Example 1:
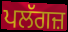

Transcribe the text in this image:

ਪਲੱਗਜ਼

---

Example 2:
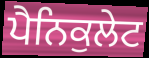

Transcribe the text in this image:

ਪੈਨਿਕੁਲੇਟ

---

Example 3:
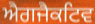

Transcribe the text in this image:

ਐਗਜੈਕਟਿਵ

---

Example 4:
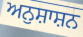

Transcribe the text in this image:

ਅਨੁਸ਼ਾਸ਼ਨ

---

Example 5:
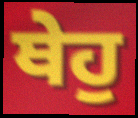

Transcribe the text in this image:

ਥੇਹੁ